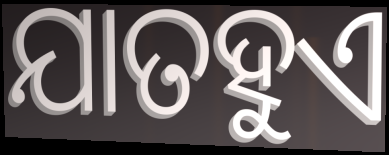
ଯାତହୁଏ